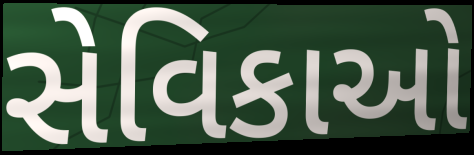
સેવિકાઓ